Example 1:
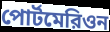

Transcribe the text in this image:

পোর্টমেরিওন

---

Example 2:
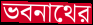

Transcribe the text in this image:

ভবনাথের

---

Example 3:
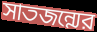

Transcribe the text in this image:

সাতজন্মের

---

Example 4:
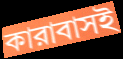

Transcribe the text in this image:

কারাবাসই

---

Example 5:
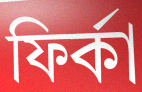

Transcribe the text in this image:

ফির্কা